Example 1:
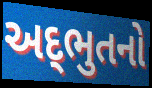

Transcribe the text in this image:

અદ્‌ભુતનો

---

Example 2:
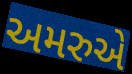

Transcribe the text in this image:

અમરુએ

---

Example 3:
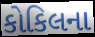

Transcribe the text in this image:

કોકિલના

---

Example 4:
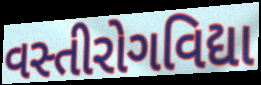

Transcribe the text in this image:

વસ્તીરોગવિદ્યા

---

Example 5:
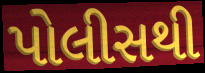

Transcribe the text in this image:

પોલીસથી